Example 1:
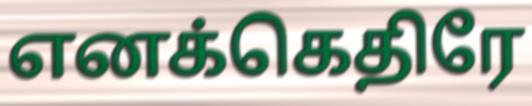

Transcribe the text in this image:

எனக்கெதிரே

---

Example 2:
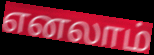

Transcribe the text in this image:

எனலாம்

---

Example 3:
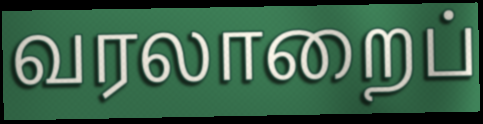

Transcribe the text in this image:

வரலாறைப்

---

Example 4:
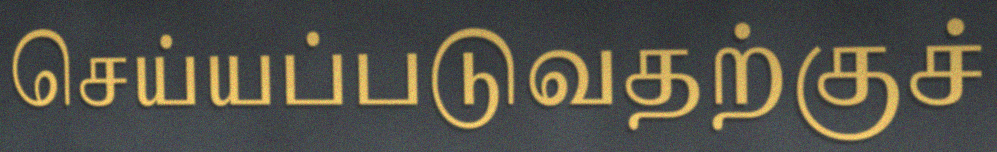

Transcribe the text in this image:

செய்யப்படுவதற்குச்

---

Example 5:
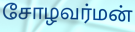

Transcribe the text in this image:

சோழவர்மன்